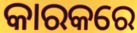
କାରକରେ